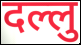
दल्लु